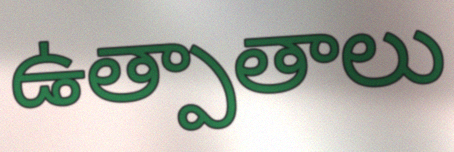
ఉత్పాతాలు